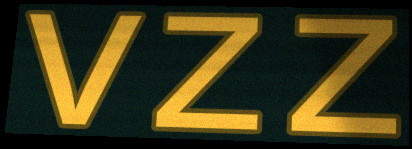
vzz